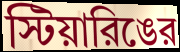
স্টিয়ারিঙের